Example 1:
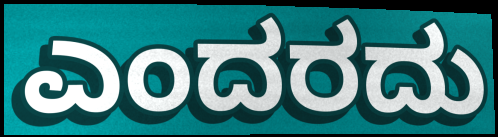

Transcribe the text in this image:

ಎಂದರದು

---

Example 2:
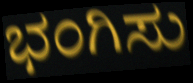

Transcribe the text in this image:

ಭಂಗಿಸು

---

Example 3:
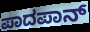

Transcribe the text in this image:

ಪಾದಪಾನ್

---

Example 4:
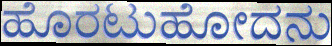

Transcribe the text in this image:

ಹೊರಟುಹೋದನು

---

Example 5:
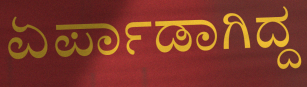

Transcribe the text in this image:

ಏರ್ಪಾಡಾಗಿದ್ದ